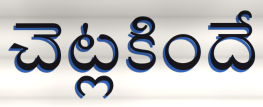
చెట్లకిందే